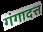
गंगादत्त